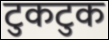
टुकटुक